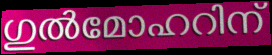
ഗുൽമോഹറിന്